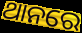
ଥାନରେ